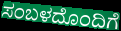
ಸಂಬಳದೊಂದಿಗೆ